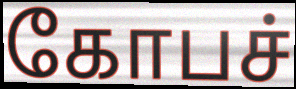
கோபச்